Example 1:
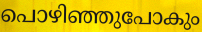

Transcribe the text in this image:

പൊഴിഞ്ഞുപോകും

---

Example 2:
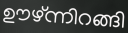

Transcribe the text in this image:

ഊഴ്ന്നിറങ്ങി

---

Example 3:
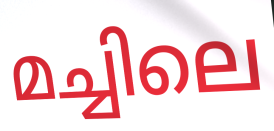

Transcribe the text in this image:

മച്ചിലെ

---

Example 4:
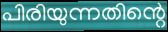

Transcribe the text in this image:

പിരിയുന്നതിന്റെ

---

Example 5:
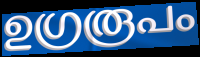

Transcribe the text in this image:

ഉഗ്രരൂപം